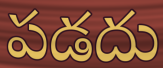
పడదు